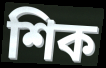
শিক